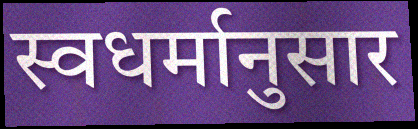
स्वधर्मानुसार